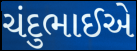
ચંદુભાઈએ